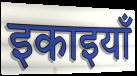
इकाइयाँ